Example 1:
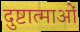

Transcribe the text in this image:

दुष्टात्माओं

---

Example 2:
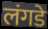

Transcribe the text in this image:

लंगडे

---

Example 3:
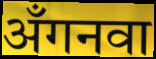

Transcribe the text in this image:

अँगनवा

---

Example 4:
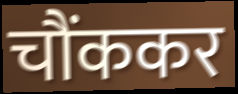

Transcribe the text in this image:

चौंककर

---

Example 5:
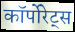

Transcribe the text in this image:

कॉर्पोरेट्स